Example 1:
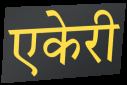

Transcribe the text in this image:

एकेरी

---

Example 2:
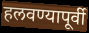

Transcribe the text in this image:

हलवण्यापूर्वी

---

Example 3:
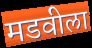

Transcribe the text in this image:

मडवीला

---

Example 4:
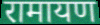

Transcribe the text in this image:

रामायण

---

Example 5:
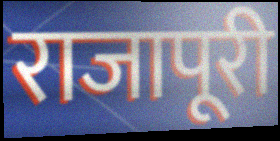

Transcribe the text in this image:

राजापूरी